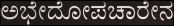
ಅಭೇದೋಪಚಾರೇನ